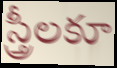
స్త్రీలకూ